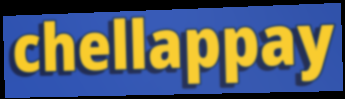
chellappay